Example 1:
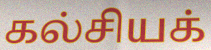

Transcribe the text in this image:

கல்சியக்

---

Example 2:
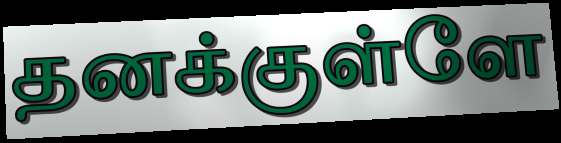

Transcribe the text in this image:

தனக்குள்ளே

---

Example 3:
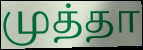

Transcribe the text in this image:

முத்தா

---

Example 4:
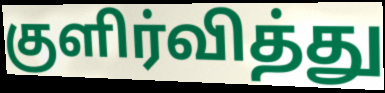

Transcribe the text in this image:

குளிர்வித்து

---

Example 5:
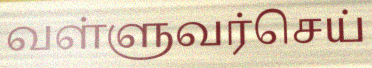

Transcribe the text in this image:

வள்ளுவர்செய்